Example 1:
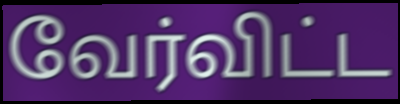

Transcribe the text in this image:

வேர்விட்ட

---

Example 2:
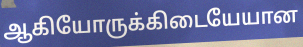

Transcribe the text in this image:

ஆகியோருக்கிடையேயான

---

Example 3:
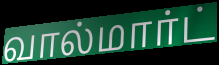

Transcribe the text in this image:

வால்மார்ட்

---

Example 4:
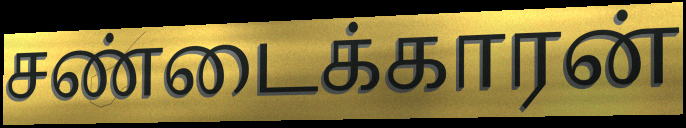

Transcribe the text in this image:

சண்டைக்காரன்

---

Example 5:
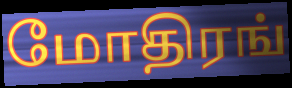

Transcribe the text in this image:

மோதிரங்